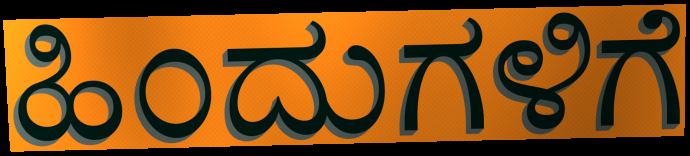
ಹಿಂದುಗಳಿಗೆ